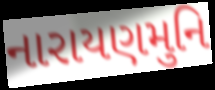
નારાયણમુનિ